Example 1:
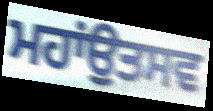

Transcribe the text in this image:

ਮਹਾਂਉਤਸਵ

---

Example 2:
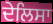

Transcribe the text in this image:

ਦੇਲਿਸਾ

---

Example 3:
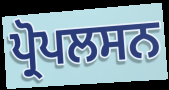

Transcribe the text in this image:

ਪ੍ਰੋਪਲਸਨ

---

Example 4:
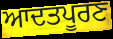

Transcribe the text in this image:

ਆਦਤਪੂਰਣ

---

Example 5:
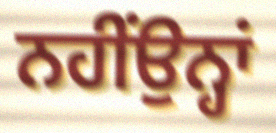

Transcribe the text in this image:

ਨਹੀਂਉਨ੍ਹਾਂ